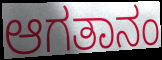
ಆಗತಾನಂ